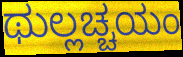
ಥುಲ್ಲಚ್ಚಯಂ